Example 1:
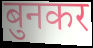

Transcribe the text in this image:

बुनकर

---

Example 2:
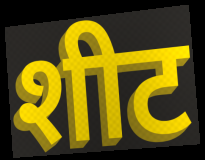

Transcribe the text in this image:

शीट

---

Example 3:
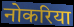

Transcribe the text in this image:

नोकरिया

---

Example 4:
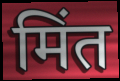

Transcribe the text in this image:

मिंत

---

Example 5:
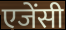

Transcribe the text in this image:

एजेंसी